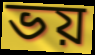
ভয়